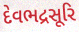
દેવભદ્રસૂરિ